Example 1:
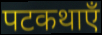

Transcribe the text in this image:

पटकथाएँ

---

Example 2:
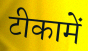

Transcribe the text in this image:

टीकामें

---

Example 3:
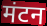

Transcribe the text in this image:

मंटन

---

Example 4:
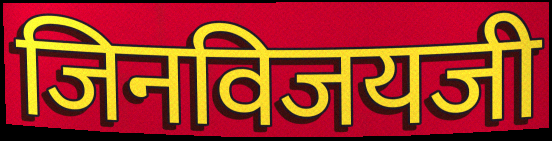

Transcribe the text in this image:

जिनविजयजी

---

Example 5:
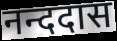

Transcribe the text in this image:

नन्ददास